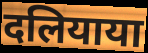
दलियाया